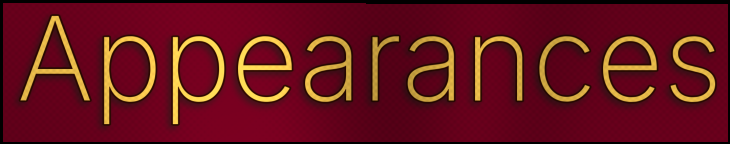
Appearances